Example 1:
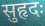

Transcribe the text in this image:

सुहृदः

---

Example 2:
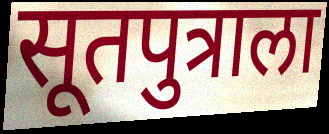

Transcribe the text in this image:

सूतपुत्राला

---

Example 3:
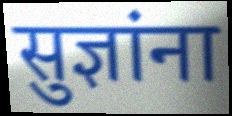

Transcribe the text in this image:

सुज्ञांना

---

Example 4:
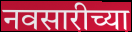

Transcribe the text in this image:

नवसारीच्या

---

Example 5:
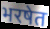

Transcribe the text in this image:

भरषेत